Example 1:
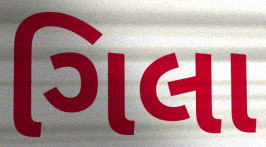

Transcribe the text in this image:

ગિલા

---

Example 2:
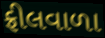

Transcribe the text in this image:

ફ્રીલવાળા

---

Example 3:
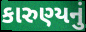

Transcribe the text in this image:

કારુણ્યનું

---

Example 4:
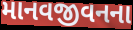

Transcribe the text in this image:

માનવજીવનના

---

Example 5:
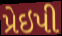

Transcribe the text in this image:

પ્રેઇપી